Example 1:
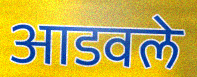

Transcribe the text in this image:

आडवले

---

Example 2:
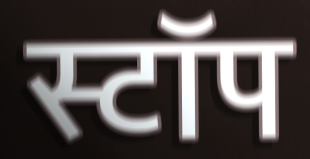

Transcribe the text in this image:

स्टॉप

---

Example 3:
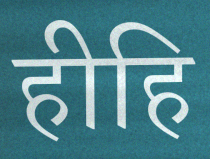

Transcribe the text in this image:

हीहि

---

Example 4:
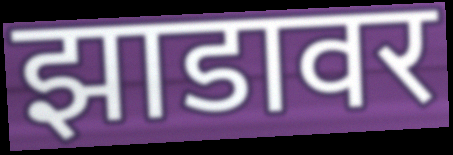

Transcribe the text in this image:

झाडावर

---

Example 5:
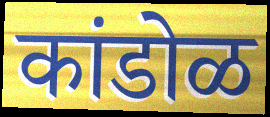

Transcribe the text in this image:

कांडोळ